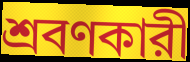
শ্রবণকারী